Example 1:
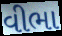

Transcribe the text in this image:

વીભા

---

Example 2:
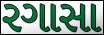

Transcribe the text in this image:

રગાસા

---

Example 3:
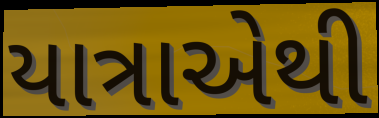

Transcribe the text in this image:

યાત્રાએથી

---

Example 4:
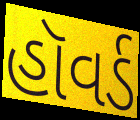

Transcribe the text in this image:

હૉવર્ડ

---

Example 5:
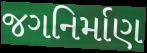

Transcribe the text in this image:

જગનિર્માણ